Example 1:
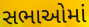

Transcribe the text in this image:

સભાઓમાં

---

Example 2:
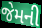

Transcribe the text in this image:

જેમની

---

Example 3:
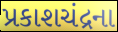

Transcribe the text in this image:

પ્રકાશચંદ્રના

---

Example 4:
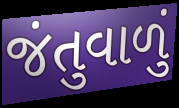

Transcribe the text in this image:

જંતુવાળું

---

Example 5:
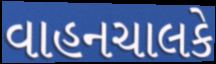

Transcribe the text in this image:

વાહનચાલકે